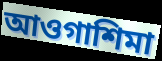
আওগাশিমা